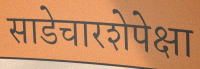
साडेचारशेपेक्षा